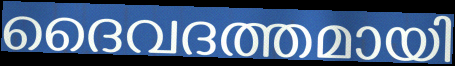
ദൈവദത്തമായി